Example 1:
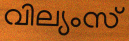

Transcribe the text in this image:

വില്യംസ്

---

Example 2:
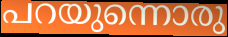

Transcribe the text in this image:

പറയുന്നൊരു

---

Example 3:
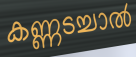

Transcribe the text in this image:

കണ്ണടച്ചാൽ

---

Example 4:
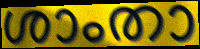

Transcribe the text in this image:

ശാംതാ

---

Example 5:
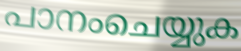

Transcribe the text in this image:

പാനംചെയ്യുക